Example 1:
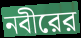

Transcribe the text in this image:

নবীরের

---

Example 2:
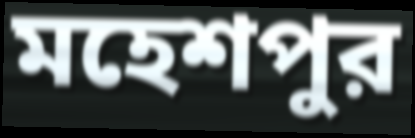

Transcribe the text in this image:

মহেশপুর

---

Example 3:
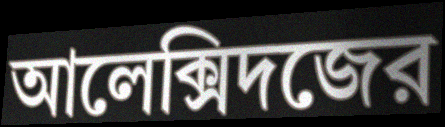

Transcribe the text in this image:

আলেক্সিদজের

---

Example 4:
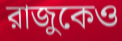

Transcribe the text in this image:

রাজুকেও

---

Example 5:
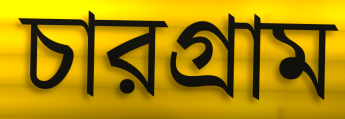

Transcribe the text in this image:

চারগ্রাম